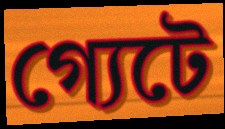
গ্যেটে